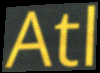
Atl